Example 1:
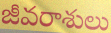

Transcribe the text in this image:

జీవరాశులు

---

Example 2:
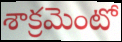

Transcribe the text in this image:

శాక్రమెంటో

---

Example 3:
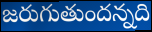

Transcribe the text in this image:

జరుగుతుందన్నది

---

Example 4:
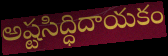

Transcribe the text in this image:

అష్టసిద్ధిదాయకం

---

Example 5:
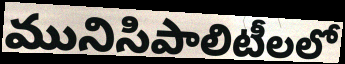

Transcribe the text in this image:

మునిసిపాలిటీలలో